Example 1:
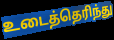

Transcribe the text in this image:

உடைத்தெரிந்து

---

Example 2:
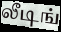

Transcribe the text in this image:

லீடிங்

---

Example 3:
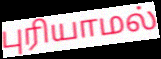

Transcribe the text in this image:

புரியாமல்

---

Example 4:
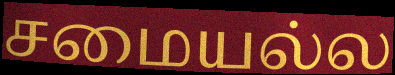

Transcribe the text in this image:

சமையல்ல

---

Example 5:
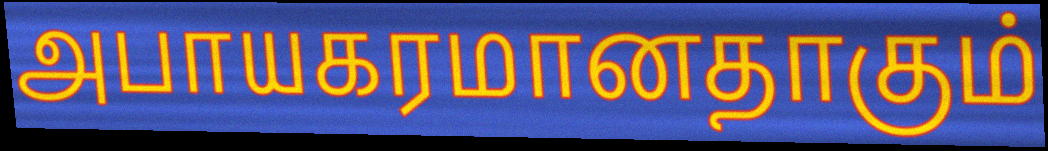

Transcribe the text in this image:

அபாயகரமானதாகும்